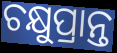
ଚକ୍ଷୁପ୍ରାନ୍ତ